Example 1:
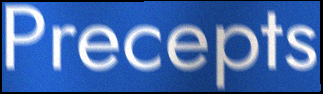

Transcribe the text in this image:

Precepts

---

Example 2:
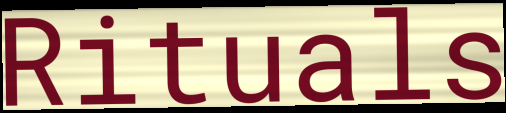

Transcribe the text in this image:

Rituals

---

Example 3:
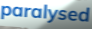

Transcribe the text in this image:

paralysed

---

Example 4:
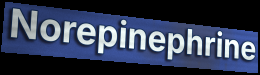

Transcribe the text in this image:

Norepinephrine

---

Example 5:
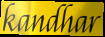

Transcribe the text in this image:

kandhar